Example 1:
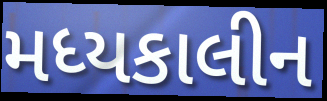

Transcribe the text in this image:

મધ્યકાલીન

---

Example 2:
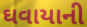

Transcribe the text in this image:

ઘવાયાની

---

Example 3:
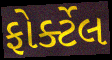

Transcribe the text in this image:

ફોર્ક્ટેલ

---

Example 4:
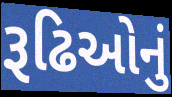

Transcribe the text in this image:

રૂઢિઓનું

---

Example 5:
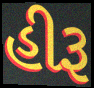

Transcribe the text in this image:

હીરૂ